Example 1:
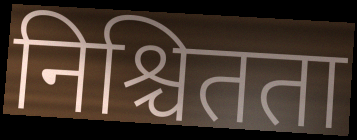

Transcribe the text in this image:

निश्चितता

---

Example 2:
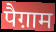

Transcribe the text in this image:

पैग़ाम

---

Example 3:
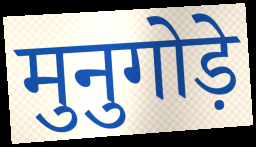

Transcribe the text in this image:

मुनुगोड़े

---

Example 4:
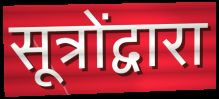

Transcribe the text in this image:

सूत्रोंद्वारा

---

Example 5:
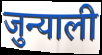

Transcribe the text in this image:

जुन्याली